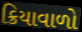
ક્રિયાવાળો